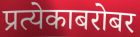
प्रत्येकाबरोबर